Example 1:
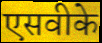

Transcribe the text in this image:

एसवीके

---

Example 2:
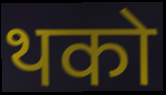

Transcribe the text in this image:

थको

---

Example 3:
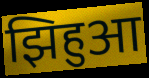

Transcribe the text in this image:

झिहुआ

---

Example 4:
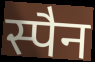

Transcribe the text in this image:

स्पैन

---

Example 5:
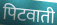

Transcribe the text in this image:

पिटवाती